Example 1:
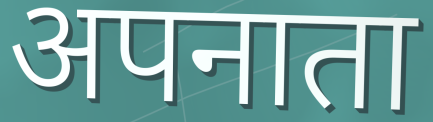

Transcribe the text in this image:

अपनाता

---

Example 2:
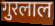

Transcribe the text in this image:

गुरलाल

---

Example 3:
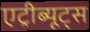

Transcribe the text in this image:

एट्रीब्यूट्स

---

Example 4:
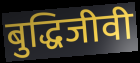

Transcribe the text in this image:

बुद्धिजीवी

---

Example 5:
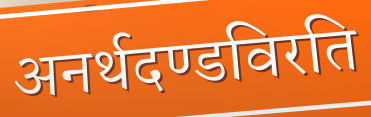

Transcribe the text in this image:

अनर्थदण्डविरति